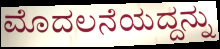
ಮೊದಲನೆಯದ್ದನ್ನು